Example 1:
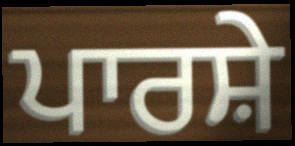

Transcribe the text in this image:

ਪਾਰਸ਼ੇ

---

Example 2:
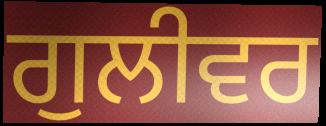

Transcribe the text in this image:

ਗੁਲੀਵਰ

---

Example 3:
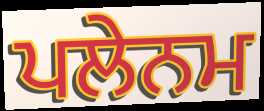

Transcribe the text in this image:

ਪਲੇਨਮ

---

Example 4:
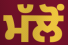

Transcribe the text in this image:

ਮੱਲੋਂ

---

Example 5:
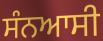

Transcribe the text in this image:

ਸੰਨਆਸੀ